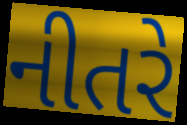
નીતરે